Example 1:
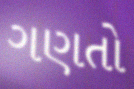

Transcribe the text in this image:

ગણતો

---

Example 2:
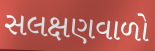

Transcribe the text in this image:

સલક્ષણવાળો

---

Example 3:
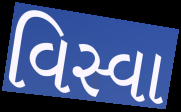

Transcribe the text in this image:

વિસ્વા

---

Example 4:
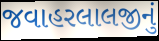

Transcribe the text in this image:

જવાહરલાલજીનું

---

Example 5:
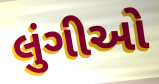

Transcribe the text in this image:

લુંગીઓ